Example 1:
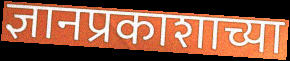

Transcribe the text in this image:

ज्ञानप्रकाशाच्या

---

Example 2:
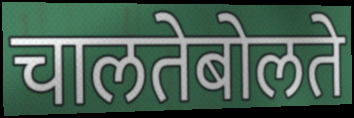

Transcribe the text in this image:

चालतेबोलते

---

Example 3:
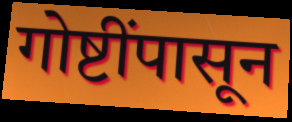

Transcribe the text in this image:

गोष्टींपासून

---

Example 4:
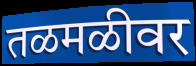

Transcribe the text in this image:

तळमळीवर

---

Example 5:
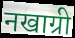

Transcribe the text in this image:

नखाग्री